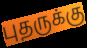
புதருக்கு